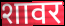
शावर